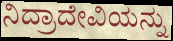
ನಿದ್ರಾದೇವಿಯನ್ನು